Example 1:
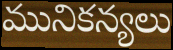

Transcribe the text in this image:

మునికన్యలు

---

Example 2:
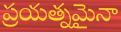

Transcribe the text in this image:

ప్రయత్నమైనా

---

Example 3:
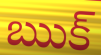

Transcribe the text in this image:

ఋక్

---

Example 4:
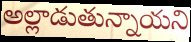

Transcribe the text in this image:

అల్లాడుతున్నాయని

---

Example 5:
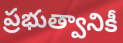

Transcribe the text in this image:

ప్రభుత్వానికీ